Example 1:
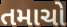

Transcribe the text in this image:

તમાચો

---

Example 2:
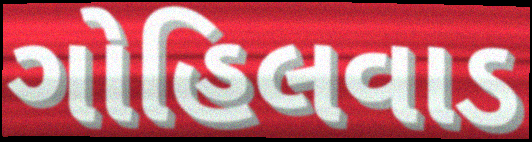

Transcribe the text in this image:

ગોહિલવાડ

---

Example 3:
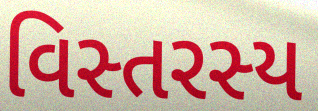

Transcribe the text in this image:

વિસ્તરસ્ય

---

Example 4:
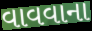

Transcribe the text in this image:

વાવવાના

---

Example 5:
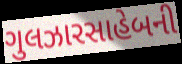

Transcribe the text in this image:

ગુલઝારસાહેબની